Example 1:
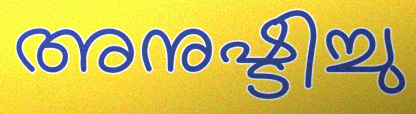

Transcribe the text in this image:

അനുഷ്ടിച്ചു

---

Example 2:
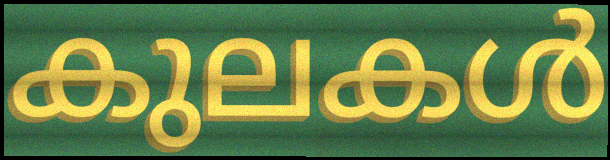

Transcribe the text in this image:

കുലകൾ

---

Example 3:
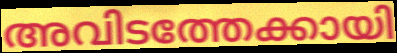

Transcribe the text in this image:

അവിടത്തേക്കായി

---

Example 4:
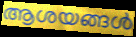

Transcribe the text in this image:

ആശയങ്ങൾ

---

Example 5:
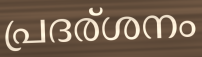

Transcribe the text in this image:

പ്രദര്ശനം